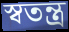
স্ৱতন্ত্ৰ